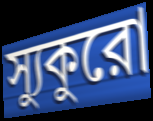
স্যুকুরো